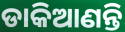
ଡାକିଆଣନ୍ତି